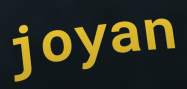
joyan